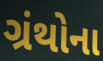
ગ્રંથોના